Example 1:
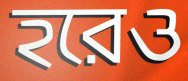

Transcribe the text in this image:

হরেও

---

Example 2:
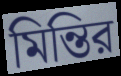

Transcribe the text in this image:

মিন্তির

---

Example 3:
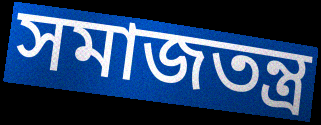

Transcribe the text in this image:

সমাজতন্ত্র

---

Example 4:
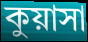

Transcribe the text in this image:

কুয়াসা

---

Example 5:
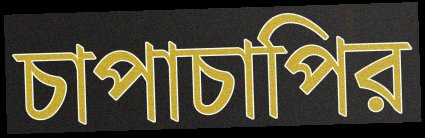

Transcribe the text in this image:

চাপাচাপির